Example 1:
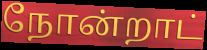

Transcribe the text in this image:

நோன்றாட்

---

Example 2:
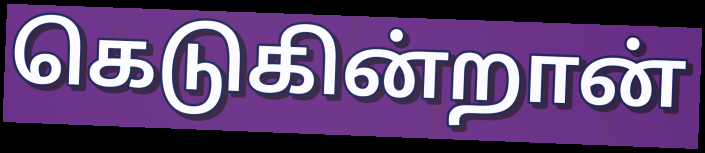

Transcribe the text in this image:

கெடுகின்றான்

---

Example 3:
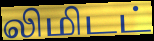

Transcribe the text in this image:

லிமிடட்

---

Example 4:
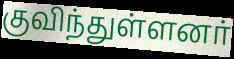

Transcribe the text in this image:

குவிந்துள்ளனர்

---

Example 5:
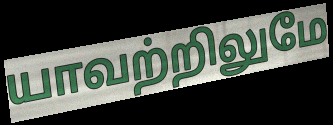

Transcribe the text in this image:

யாவற்றிலுமே